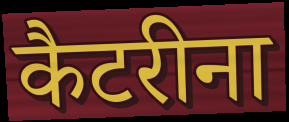
कैटरीना